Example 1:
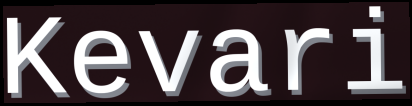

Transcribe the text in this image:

Kevari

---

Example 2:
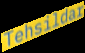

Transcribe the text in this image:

Tehsildar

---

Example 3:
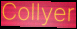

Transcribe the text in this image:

Collyer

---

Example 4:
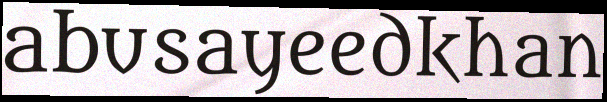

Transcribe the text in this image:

abusayeedkhan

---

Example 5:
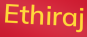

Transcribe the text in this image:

Ethiraj